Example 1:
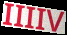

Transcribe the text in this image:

IIIIV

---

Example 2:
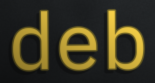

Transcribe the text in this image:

deb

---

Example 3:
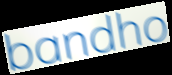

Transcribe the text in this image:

bandho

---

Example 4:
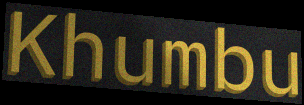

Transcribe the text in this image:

Khumbu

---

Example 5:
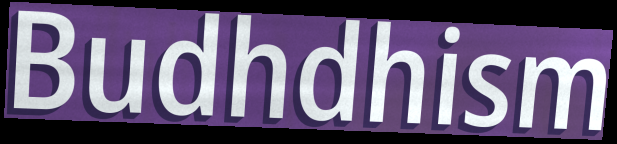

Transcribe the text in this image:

Budhdhism